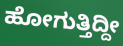
ಹೋಗುತ್ತಿದ್ದೀ